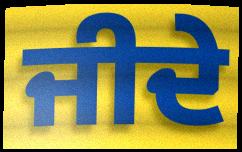
ਜੀਦੇ